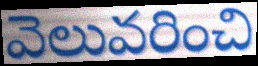
వెలువరించి